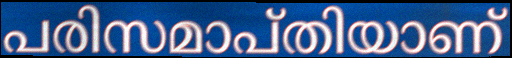
പരിസമാപ്തിയാണ്